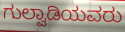
ಗುಲ್ವಾಡಿಯವರು